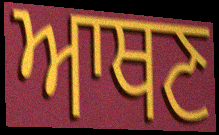
ਆਥਣ